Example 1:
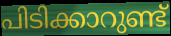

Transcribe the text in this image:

പിടിക്കാറുണ്ട്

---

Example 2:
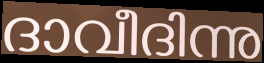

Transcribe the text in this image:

ദാവീദിന്നു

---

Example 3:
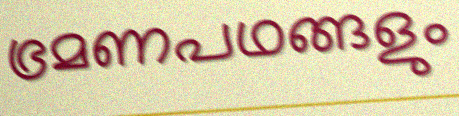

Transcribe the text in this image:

ഭ്രമണപഥങ്ങളും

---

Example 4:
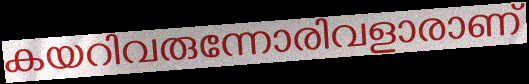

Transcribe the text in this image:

കയറിവരുന്നോരിവളാരാണ്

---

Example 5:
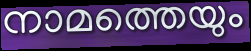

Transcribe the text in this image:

നാമത്തെയും